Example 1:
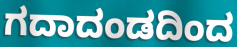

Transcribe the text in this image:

ಗದಾದಂಡದಿಂದ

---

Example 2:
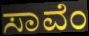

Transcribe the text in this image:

ಸಾವೆಂ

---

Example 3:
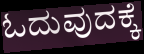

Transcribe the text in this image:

ಓದುವುದಕ್ಕೆ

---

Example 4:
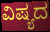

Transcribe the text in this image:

ವಿಷ್ಯದ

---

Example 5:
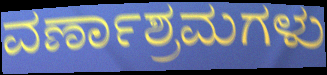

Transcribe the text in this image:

ವರ್ಣಾಶ್ರಮಗಳು